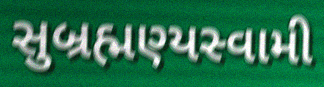
સુબ્રહ્મણ્યસ્વામી